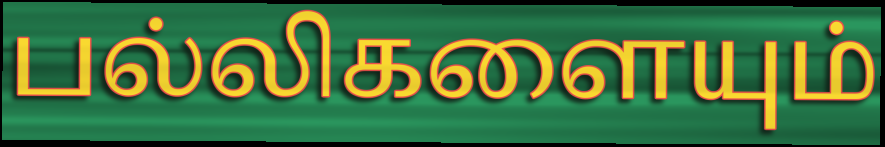
பல்லிகளையும்